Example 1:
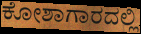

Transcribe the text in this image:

ಕೋಶಾಗಾರದಲ್ಲಿ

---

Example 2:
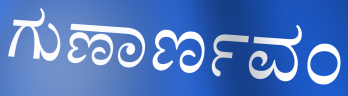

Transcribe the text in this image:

ಗುಣಾರ್ಣವಂ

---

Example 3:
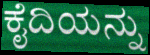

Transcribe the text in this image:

ಕೈದಿಯನ್ನು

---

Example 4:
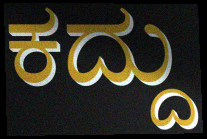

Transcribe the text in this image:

ಕದ್ದು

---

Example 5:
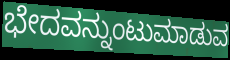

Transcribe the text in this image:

ಭೇದವನ್ನುಂಟುಮಾಡುವ